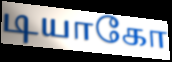
டியாகோ